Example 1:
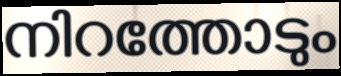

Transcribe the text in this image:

നിറത്തോടും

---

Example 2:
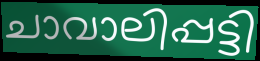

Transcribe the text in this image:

ചാവാലിപ്പട്ടി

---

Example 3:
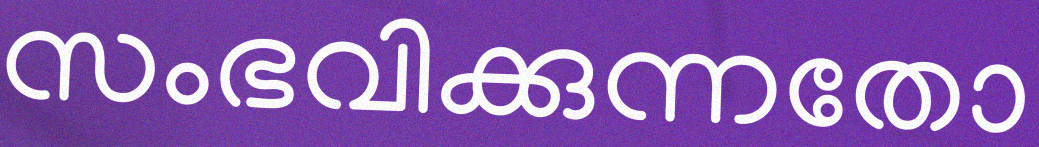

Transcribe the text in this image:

സംഭവിക്കുന്നതോ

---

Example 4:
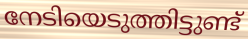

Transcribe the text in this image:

നേടിയെടുത്തിട്ടുണ്ട്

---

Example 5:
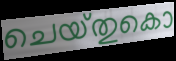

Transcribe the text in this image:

ചെയ്‌തുകൊ